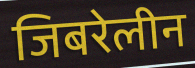
जिबरेलीन